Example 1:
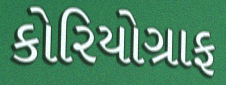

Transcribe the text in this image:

કોરિયોગ્રાફ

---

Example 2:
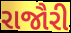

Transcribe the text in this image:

રાજૌરી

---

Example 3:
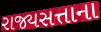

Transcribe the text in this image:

રાજ્યસત્તાના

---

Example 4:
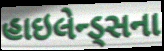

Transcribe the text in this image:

હાઇલેન્ડ્સના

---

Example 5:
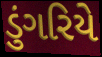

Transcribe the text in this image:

ડુંગરિયે